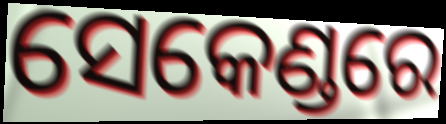
ସେକେଣ୍ଡରେ